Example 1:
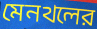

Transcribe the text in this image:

মেনথলের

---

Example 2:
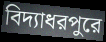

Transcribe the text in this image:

বিদ্যাধরপুরে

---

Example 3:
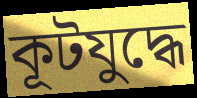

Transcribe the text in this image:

কূটযুদ্ধে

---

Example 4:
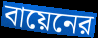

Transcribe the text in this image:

বায়েনের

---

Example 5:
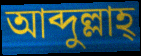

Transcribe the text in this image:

আব্দুল্লাহ্